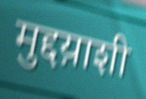
मुद्दय़ाशी